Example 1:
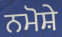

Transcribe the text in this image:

ਨਮੋਸ਼ੇ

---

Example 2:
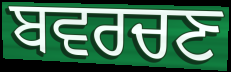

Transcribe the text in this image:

ਬਵਰਚਣ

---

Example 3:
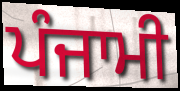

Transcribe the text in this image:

ਪੰਜਾਮੀ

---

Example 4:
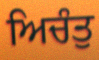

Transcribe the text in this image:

ਅਿਚੰਤੁ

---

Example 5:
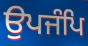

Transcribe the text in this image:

ਉਪਜੰਪਿ